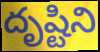
దృష్టిని